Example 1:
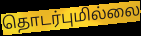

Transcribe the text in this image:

தொடர்புமில்லை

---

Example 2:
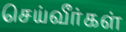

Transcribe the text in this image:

செய்வீர்கள்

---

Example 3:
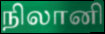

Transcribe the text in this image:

நிலானி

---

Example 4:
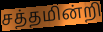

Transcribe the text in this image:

சத்தமின்றி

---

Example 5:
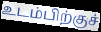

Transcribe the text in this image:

உடம்பிற்குச்